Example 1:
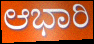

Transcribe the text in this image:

ಆಭಾರಿ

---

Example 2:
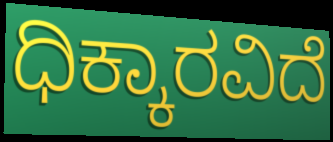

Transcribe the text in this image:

ಧಿಕ್ಕಾರವಿದೆ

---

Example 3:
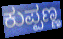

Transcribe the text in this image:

ಕುಪ್ಪಣ್ಣ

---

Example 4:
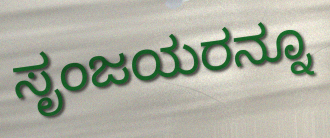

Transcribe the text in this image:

ಸೃಂಜಯರನ್ನೂ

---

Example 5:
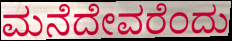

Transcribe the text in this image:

ಮನೆದೇವರೆಂದು